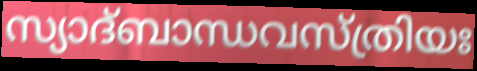
സ്യാദ്ബാന്ധവസ്ത്രിയഃ